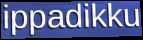
ippadikku